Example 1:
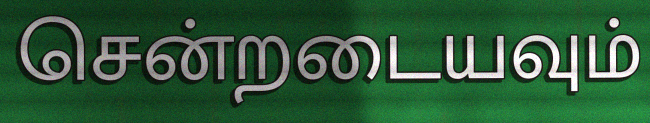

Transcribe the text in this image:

சென்றடையவும்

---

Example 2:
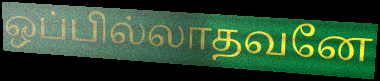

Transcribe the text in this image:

ஒப்பில்லாதவனே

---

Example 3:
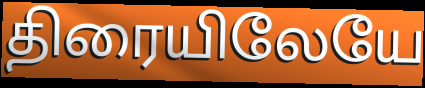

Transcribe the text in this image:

திரையிலேயே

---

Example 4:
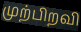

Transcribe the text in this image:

முற்பிறவி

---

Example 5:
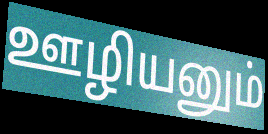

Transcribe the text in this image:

ஊழியனும்